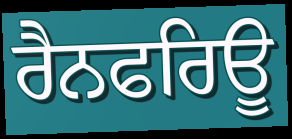
ਰੈਨਫਰਿਊ